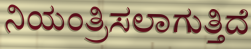
ನಿಯಂತ್ರಿಸಲಾಗುತ್ತಿದೆ